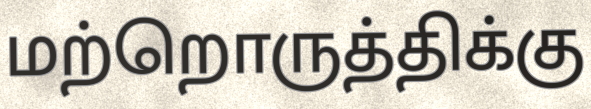
மற்றொருத்திக்கு